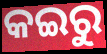
କଇରୁ